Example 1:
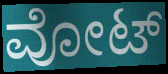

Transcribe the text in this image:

ವೋಟ್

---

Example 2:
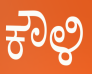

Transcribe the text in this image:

ಕೌಳಿ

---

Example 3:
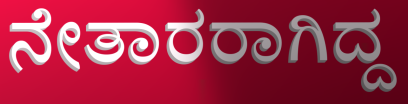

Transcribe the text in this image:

ನೇತಾರರಾಗಿದ್ದ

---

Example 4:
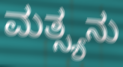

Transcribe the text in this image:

ಮತ್ಸ್ಯನು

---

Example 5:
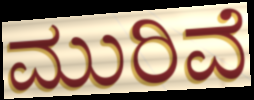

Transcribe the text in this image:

ಮುರಿವೆ